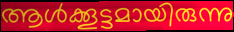
ആൾക്കൂട്ടമായിരുന്നു